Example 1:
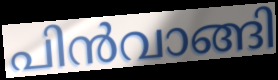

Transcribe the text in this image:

പിൻവാങ്ങി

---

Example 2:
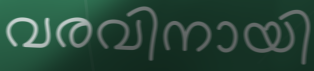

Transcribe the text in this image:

വരവിനായി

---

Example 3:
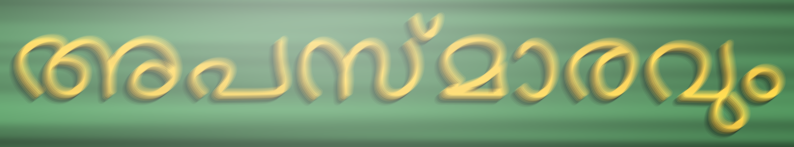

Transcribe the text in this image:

അപസ്മാരവും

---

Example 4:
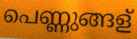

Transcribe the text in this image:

പെണ്ണുങ്ങള്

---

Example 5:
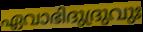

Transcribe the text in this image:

ഏവാഭിദുദ്രുവുഃ